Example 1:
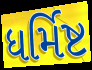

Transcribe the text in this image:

ધર્મિષ્ટ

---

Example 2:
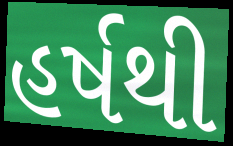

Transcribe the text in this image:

હર્ષથી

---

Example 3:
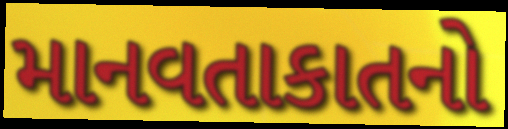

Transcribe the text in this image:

માનવતાકાતનો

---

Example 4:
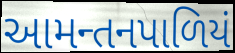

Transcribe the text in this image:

આમન્તનપાળિયં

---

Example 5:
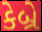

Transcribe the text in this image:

કેબ્રે